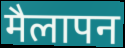
मैलापन